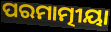
ପରମାତ୍ମୀୟା